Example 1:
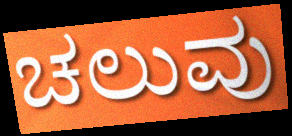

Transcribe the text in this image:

ಚಲುವು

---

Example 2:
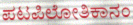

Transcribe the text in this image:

ಪಟಪಿಲೋತಿಕಾನಂ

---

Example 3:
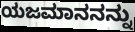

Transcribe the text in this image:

ಯಜಮಾನನನ್ನು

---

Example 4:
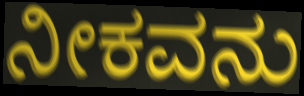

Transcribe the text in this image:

ನೀಕವನು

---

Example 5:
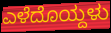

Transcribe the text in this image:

ಎಳೆದೊಯ್ದಳು